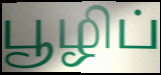
பூழிப்